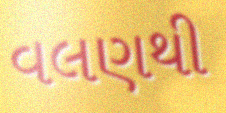
વલણથી